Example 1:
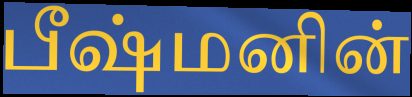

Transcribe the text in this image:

பீஷ்மனின்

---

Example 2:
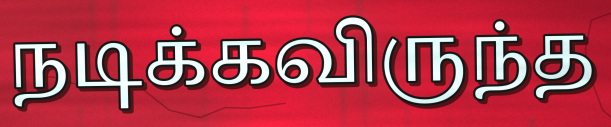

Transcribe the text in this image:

நடிக்கவிருந்த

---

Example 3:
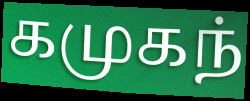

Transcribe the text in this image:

கமுகந்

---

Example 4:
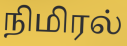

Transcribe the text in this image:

நிமிரல்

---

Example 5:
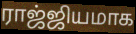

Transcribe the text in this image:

ராஜ்ஜியமாக